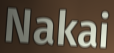
Nakai